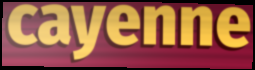
cayenne